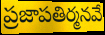
ప్రజాపతిర్మనవే